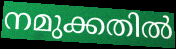
നമുക്കതിൽ